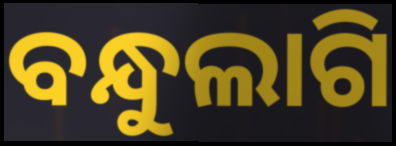
ବନ୍ଧୁଲାଗି